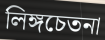
লিঙ্গচেতনা